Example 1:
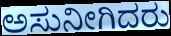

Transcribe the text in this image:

ಅಸುನೀಗಿದರು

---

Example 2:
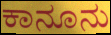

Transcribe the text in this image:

ಕಾನೂನು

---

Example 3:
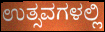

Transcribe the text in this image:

ಉತ್ಸವಗಳಲ್ಲಿ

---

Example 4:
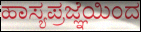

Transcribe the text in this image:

ಹಾಸ್ಯಪ್ರಜ್ಞೆಯಿಂದ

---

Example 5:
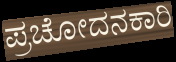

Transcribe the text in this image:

ಪ್ರಚೋದನಕಾರಿ